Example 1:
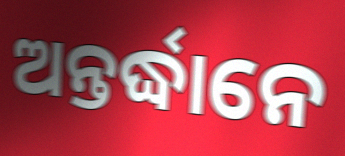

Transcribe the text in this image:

ଅନ୍ତର୍ଦ୍ଧାନେ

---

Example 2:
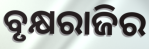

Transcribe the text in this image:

ବୃକ୍ଷରାଜିର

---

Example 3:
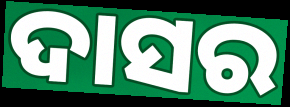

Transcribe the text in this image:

ଦାସର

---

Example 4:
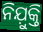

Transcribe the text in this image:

ନିଯ଼ୁକ୍ତି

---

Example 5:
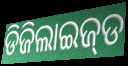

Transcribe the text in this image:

ଡିଜିଲାଇଜ୍‌ଡ